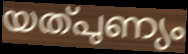
യത്പുണ്യം